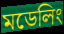
মডেলিং